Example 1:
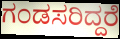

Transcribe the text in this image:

ಗಂಡಸರಿದ್ದರೆ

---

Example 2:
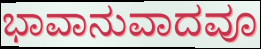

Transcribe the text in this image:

ಭಾವಾನುವಾದವೂ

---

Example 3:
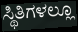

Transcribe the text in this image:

ಸ್ಥಿತಿಗಳಲ್ಲೂ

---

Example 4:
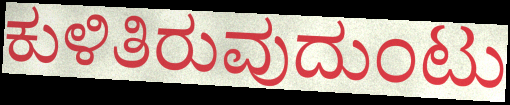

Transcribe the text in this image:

ಕುಳಿತಿರುವುದುಂಟು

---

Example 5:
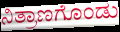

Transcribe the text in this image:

ನಿತ್ರಾಣಗೊಂಡು